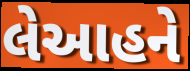
લેઆહને